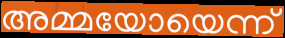
അമ്മയോയെന്ന്